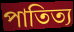
পাতিত্য